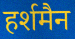
हर्शमैन